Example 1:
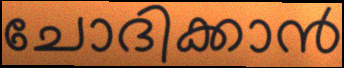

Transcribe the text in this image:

ചോദിക്കാൻ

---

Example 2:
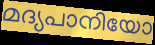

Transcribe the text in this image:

മദ്യപാനിയോ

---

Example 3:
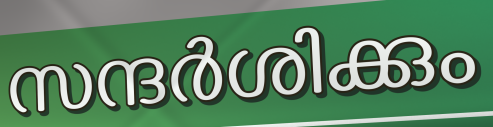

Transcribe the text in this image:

സന്ദർശിക്കും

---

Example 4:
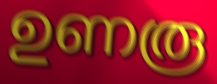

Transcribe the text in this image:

ഉണരൂ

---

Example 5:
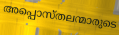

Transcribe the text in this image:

അപ്പൊസ്തലന്മാരുടെ